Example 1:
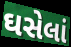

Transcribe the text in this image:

ઘસેલાં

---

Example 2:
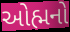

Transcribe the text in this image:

ઓહ્મનો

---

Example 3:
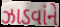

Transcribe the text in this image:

ઝાડવાંને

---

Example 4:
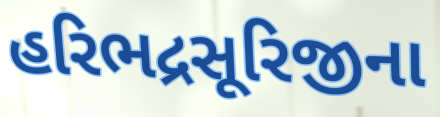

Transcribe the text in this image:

હરિભદ્રસૂરિજીના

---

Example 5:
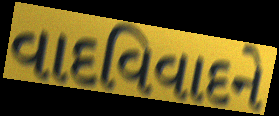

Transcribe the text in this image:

વાદવિવાદને